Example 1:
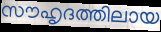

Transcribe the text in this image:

സൗഹൃദത്തിലായ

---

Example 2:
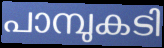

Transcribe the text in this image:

പാമ്പുകടി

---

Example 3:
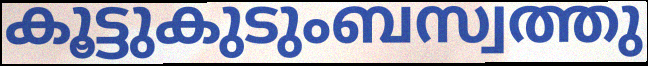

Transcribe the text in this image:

കൂട്ടുകുടുംബസ്വത്തു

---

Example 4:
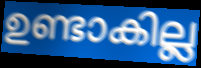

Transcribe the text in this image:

ഉണ്ടാകില്ല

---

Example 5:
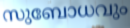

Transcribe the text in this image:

സുബോധവും